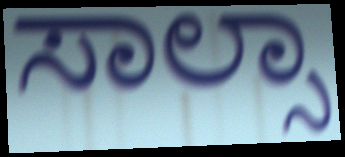
ಸಾಲ್ಸಾ